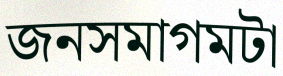
জনসমাগমটা